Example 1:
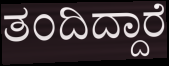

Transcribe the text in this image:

ತಂದಿದ್ದಾರೆ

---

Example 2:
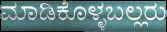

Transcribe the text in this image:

ಮಾಡಿಕೊಳ್ಳಬಲ್ಲರು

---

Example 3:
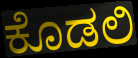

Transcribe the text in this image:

ಕೊಡಲಿ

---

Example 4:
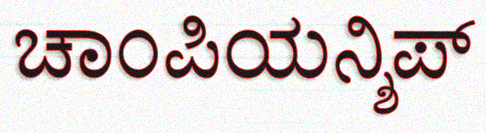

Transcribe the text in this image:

ಚಾಂಪಿಯನ್ಶಿಪ್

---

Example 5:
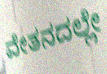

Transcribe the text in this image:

ವೇತನದಲ್ಲೇ